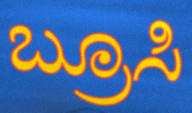
ಬ್ರೂಸಿ